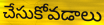
చేసుకోవడాలు